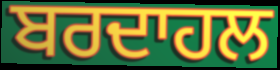
ਬਰਦਾਹਲ